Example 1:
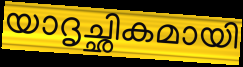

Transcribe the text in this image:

യാദൃച്ഛികമായി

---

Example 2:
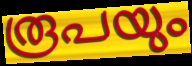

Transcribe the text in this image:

രൂപയും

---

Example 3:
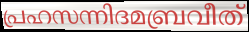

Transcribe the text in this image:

പ്രഹസന്നിദമബ്രവീത്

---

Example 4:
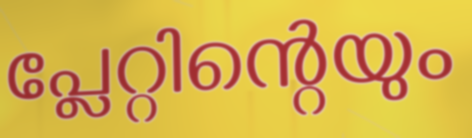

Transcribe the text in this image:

പ്ലേറ്റിന്റെയും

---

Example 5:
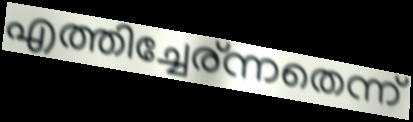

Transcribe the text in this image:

എത്തിച്ചേര്ന്നതെന്ന്